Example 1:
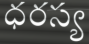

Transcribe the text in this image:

ధరస్య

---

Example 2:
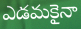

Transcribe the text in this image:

ఎడమకైనా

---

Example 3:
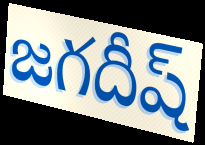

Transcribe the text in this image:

జగదీష్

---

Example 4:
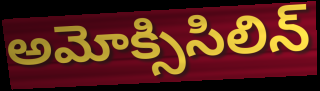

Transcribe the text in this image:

అమోక్సిసిలిన్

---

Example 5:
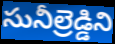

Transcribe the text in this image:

సునీల్రెడ్డిని